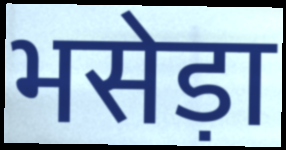
भसेड़ा